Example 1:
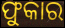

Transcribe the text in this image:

ଫୁକାର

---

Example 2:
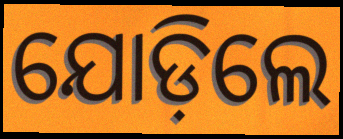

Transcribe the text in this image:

ଯୋଡ଼ିଲେ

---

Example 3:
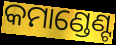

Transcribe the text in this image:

କମାଣ୍ଡେଣ୍ଟ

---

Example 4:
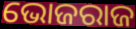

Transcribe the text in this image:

ଭୋଜରାଜ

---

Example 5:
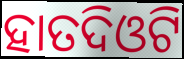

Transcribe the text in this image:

ହାତଦିଓଟି